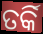
ତର୍କି